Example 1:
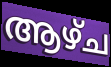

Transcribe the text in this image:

ആഴ്ച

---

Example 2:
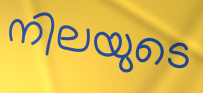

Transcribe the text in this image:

നിലയുടെ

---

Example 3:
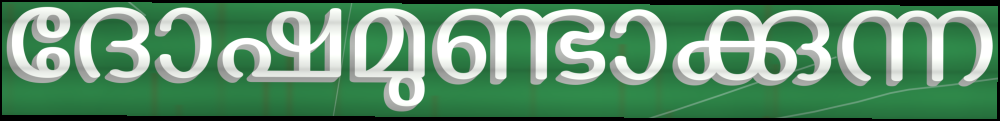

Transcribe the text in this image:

ദോഷമുണ്ടാക്കുന്ന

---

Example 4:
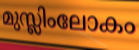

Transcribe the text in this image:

മുസ്ലിംലോകം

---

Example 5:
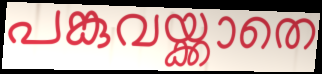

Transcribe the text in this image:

പങ്കുവയ്ക്കാതെ